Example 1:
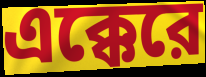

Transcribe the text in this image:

এক্কেরে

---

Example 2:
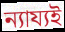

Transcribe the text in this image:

ন্যায্যই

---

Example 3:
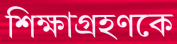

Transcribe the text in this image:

শিক্ষাগ্রহণকে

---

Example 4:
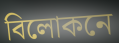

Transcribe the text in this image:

বিলোকনে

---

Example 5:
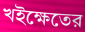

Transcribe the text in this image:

খইক্ষেতের